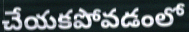
చేయకపోవడంలో